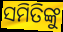
ସମିତିଙ୍କୁ